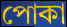
পোকা